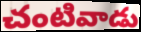
చంటివాడు